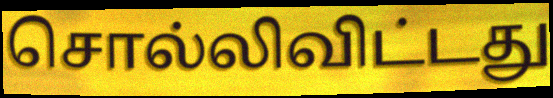
சொல்லிவிட்டது